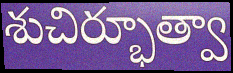
శుచిర్భూత్వా